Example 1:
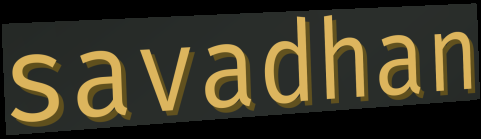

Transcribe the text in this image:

savadhan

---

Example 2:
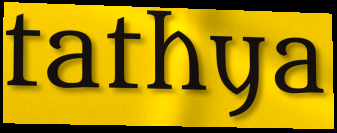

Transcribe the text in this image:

tathya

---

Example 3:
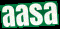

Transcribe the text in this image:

aasa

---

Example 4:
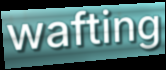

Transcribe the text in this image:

wafting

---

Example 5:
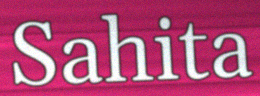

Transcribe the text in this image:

Sahita